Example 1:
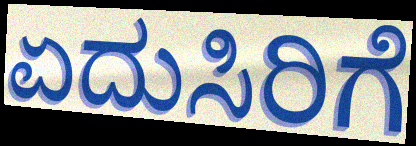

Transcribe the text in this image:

ಏದುಸಿರಿಗೆ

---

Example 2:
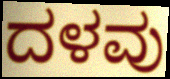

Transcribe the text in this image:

ದಳವು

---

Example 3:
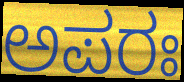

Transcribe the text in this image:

ಅಪರಃ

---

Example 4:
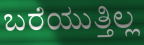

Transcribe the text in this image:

ಬರೆಯುತ್ತಿಲ್ಲ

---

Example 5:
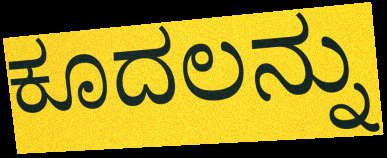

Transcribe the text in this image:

ಕೂದಲನ್ನು